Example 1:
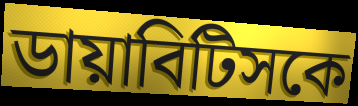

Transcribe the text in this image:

ডায়াবিটিসকে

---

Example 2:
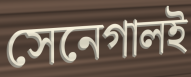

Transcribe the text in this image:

সেনেগালই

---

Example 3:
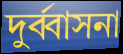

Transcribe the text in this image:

দুর্ব্বাসনা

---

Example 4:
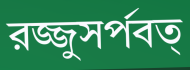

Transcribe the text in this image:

রজ্জুসর্পবত্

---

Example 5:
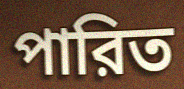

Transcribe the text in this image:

পারিত